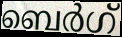
ബെർഗ്